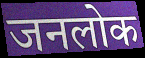
जनलोक